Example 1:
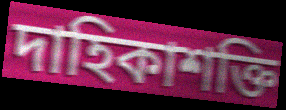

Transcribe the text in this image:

দাহিকাশক্তি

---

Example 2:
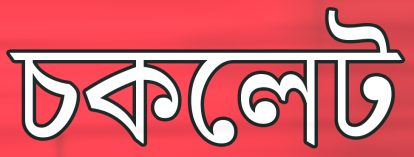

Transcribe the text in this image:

চকলেট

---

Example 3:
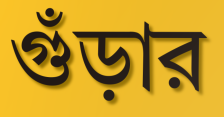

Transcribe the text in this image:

গুঁড়ার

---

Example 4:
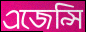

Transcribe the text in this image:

এজেন্সি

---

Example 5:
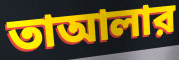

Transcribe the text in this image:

তাআলার